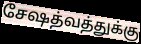
சேஷத்வத்துக்கு